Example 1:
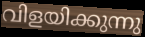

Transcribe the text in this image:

വിളയിക്കുന്നു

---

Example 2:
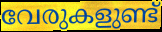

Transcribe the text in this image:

വേരുകളുണ്ട്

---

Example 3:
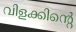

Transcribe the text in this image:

വിളക്കിന്റെ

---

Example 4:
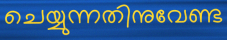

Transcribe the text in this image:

ചെയ്യുന്നതിനുവേണ്ട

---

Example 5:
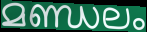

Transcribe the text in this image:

മണ്ഡലം